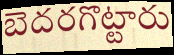
బెదరగొట్టారు